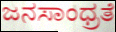
ಜನಸಾಂಧ್ರತೆ